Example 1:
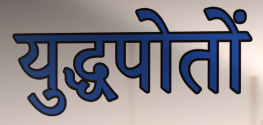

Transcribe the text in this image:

युद्धपोतों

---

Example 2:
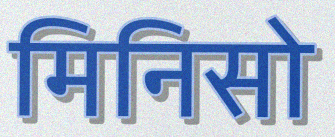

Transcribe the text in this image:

मिनिसो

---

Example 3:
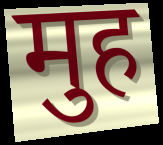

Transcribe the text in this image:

मुह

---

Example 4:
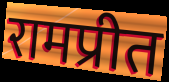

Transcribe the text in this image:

रामप्रीत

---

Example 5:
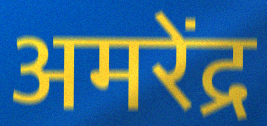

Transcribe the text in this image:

अमरेंद्र